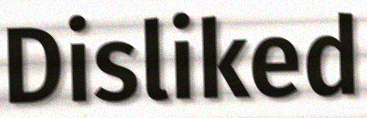
Disliked